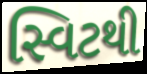
સ્વિટથી